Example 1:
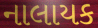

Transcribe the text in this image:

નાલાયક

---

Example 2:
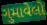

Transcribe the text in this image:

ગુમાવેલો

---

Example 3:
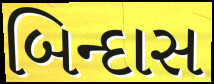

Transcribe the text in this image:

બિન્દાસ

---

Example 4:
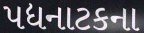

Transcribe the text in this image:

પદ્યનાટકના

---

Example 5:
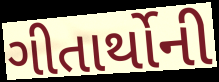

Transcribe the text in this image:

ગીતાર્થોની